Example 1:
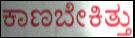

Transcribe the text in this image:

ಕಾಣಬೇಕಿತ್ತು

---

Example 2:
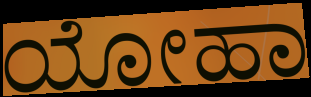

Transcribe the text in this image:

ಯೋಹಾ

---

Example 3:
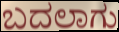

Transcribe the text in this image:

ಬದಲಾಗು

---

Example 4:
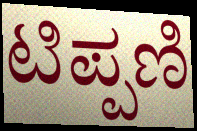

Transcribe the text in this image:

ಟಿಪ್ಪಣಿ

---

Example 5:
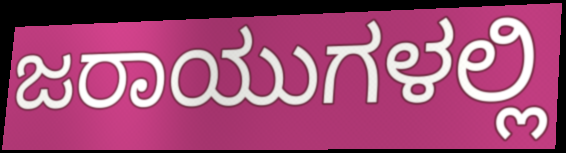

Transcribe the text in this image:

ಜರಾಯುಗಳಲ್ಲಿ